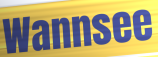
Wannsee